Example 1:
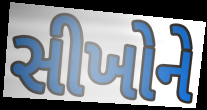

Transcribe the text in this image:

સીખોને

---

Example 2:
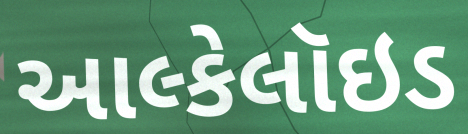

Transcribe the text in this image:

આલ્કેલૉઇડ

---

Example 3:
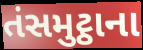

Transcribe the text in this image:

તંસમુટ્ઠાના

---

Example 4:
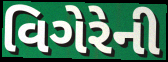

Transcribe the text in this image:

વિગેરેની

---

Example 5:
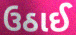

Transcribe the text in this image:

ઉઠાઈ